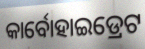
କାର୍ବୋହାଇଡ୍ରେଟ